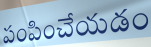
పంపించేయడం